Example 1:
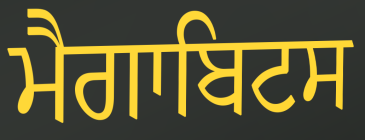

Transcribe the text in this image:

ਮੈਗਾਬਿਟਸ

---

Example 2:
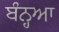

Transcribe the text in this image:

ਬੰਨ੍ਹਆ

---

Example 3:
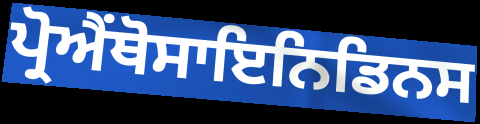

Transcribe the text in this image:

ਪ੍ਰੋਐਂਥੋਸਾਇਨਿਡਿਨਸ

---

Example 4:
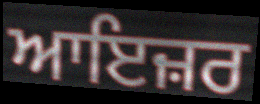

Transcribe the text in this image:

ਆਇਜ਼ਰ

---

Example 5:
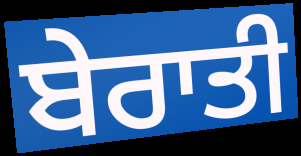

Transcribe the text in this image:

ਬੇਰਾਤੀ